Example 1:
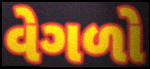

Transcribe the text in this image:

વેગળો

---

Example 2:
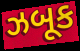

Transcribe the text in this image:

ઝબૂક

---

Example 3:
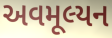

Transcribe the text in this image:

અવમૂલ્યન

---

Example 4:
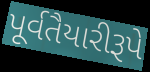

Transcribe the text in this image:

પૂર્વતૈયારીરૂપે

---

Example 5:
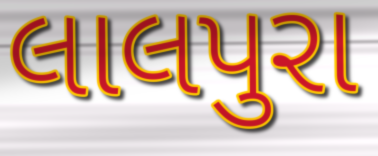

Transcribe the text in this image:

લાલપુરા